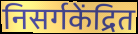
निसर्गकेंद्रित